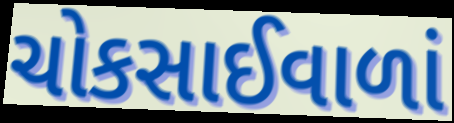
ચોકસાઈવાળાં